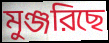
মুঞ্জরিছে